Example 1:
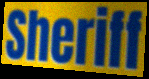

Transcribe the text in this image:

Sheriff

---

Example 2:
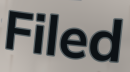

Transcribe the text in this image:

Filed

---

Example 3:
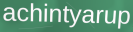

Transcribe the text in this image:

achintyarup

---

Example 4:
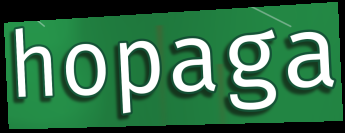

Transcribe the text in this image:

hopaga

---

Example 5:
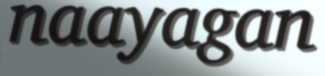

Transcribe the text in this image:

naayagan